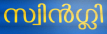
സ്വിൻഗ്ലി